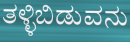
ತಳ್ಳಿಬಿಡುವನು